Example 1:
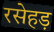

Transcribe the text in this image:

रसेहड़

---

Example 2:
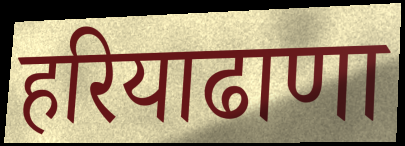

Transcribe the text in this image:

हरियाढाणा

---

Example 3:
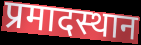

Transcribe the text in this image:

प्रमादस्थान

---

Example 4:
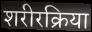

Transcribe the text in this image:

शरीरक्रिया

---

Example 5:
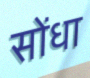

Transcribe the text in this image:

सोंधा